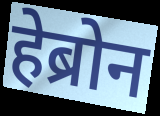
हेब्रोन